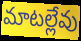
మాటల్లేవు